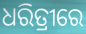
ଧରିତ୍ରୀରେ